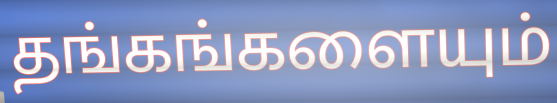
தங்கங்களையும்